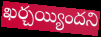
ఖర్చయ్యిందని